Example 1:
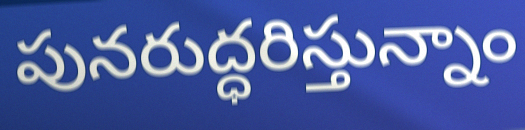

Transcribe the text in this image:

పునరుద్ధరిస్తున్నాం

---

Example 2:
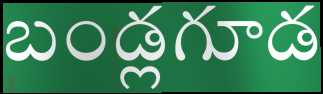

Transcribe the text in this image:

బండ్లగూడ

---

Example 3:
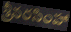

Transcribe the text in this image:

శ్రీనరసింహా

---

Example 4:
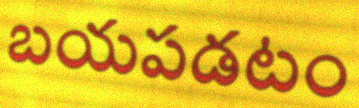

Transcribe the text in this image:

బయపడటం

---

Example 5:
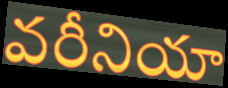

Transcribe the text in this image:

వరీనియా